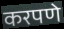
करपणे